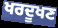
ਖਰਦੂਖਣ